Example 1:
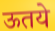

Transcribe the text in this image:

ऊतये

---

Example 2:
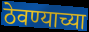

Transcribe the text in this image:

ठेवण्याच्या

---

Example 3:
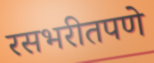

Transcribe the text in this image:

रसभरीतपणे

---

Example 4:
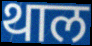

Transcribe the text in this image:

थाल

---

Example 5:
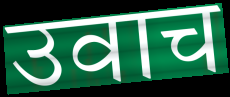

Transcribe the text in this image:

उवाच